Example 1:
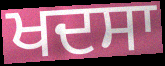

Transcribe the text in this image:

ਖਦਸਾ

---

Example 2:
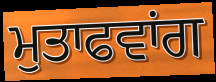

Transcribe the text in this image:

ਮੁਤਾਫਵਾਂਗ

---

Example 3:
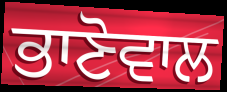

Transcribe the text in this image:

ਭਾਣੋਵਾਲ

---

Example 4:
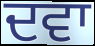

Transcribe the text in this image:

ਦਵਾ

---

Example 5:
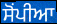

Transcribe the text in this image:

ਸੋਂਪੀਆ